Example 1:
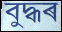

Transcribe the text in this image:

বুদ্ধৰ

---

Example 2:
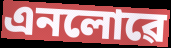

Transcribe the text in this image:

এনলোৱে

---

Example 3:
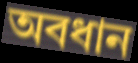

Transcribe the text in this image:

অবধান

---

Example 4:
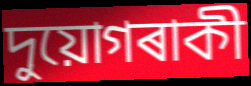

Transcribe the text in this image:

দুয়োগৰাকী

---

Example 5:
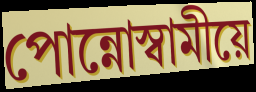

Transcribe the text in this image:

পোন্নোস্বামীয়ে